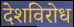
देशविरोध